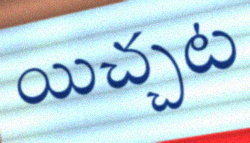
యిచ్చట